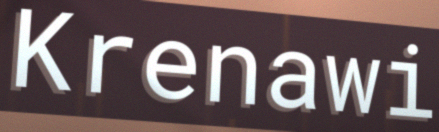
Krenawi